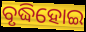
ବୃଦ୍ଧିହୋଇ